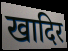
खादिर